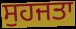
ਸੁਹਜਤਾ